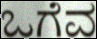
ಒಗೆವ